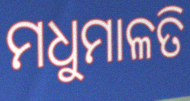
ମଧୁମାଳତି